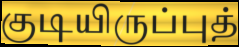
குடியிருப்புத்